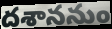
దశాననుం